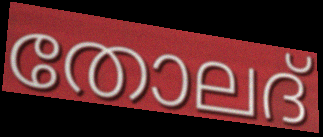
തോലദ്